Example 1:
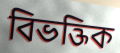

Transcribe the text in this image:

বিভক্তিক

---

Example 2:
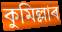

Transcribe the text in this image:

কুমিল্লাৰ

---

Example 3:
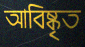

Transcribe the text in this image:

আবিষ্কৃত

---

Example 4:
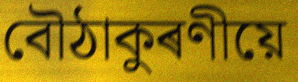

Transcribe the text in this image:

বৌঠাকুৰণীয়ে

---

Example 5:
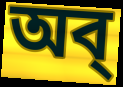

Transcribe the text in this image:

অব্